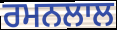
ਰਮਨਲਾਲ